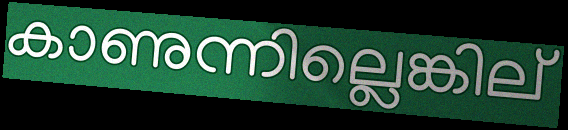
കാണുന്നില്ലെങ്കില്